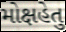
મોક્ષહેતુ